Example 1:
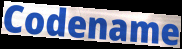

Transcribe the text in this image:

Codename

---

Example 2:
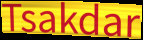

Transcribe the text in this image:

Tsakdar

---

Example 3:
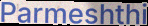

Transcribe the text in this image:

Parmeshthi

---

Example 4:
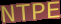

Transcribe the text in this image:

NTPE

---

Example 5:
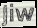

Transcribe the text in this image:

Jiw